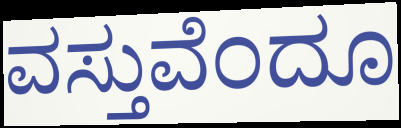
ವಸ್ತುವೆಂದೂ